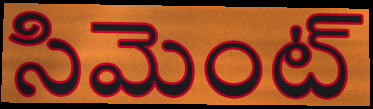
సిమెంట్